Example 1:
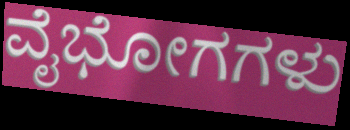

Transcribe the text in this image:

ವೈಭೋಗಗಳು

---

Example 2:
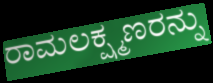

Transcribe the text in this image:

ರಾಮಲಕ್ಷ್ಮಣರನ್ನು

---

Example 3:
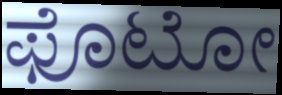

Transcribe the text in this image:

ಫೊಟೋ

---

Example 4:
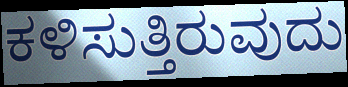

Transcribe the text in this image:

ಕಳಿಸುತ್ತಿರುವುದು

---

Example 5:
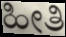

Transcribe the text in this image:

ಹೀತಿ